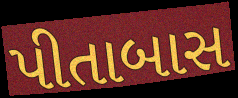
પીતાબાસ